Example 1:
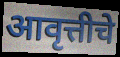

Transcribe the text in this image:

आवृत्तीचे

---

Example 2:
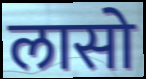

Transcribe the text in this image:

लासो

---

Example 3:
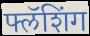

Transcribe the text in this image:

फ्लॅशिंग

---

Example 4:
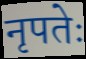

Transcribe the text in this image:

नृपतेः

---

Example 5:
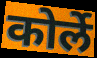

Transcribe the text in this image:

कोर्ले